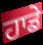
ਹਾਡੇ